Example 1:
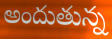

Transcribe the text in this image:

అందుతున్న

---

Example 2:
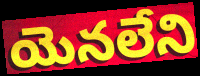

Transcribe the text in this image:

యెనలేని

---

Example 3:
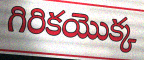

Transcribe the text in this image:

గిరికయొక్క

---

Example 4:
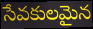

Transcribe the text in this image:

సేవకులమైన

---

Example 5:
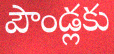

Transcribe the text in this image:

పౌండ్లకు